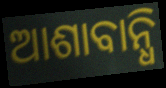
ଆଶାବାନ୍ଧି